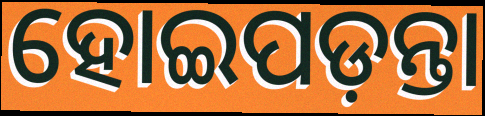
ହୋଇପଡ଼ନ୍ତା